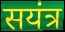
सयंत्र